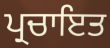
ਪ੍ਰਚਾਇਤ